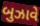
બુઝાવે